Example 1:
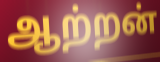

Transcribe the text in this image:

ஆற்றன்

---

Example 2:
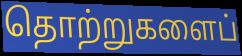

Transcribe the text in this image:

தொற்றுகளைப்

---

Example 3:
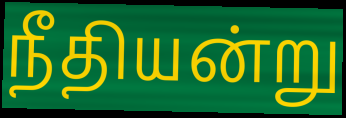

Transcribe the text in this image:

நீதியன்று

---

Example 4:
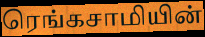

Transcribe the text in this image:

ரெங்கசாமியின்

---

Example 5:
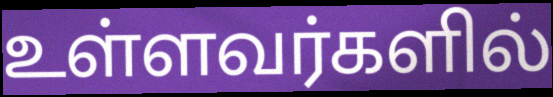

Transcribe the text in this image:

உள்ளவர்களில்